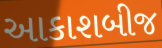
આકાશબીજ